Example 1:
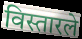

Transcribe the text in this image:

विस्तारले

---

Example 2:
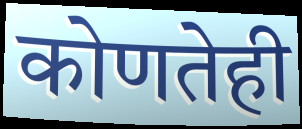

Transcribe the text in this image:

कोणतेही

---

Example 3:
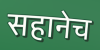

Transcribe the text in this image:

सहानेच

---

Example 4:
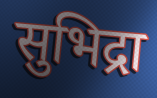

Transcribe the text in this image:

सुभिद्रा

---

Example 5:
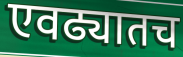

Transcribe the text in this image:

एवढ्यातच